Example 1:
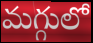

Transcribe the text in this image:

మగ్గులో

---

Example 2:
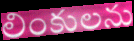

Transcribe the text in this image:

లింకులను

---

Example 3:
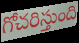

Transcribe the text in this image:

గోచరిస్తుంది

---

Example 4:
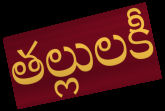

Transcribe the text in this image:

తల్లులకీ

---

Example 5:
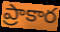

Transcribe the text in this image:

ప్రాకార